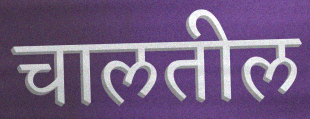
चालतील